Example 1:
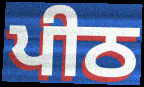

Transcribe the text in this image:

ਪੀਠ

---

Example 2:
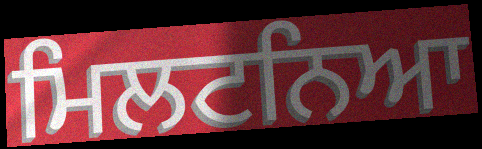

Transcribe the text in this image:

ਮਿਲਟਨਿਆ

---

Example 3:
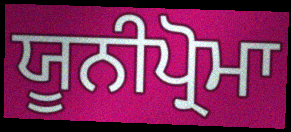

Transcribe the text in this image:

ਯੂਨੀਪ੍ਰੋਮਾ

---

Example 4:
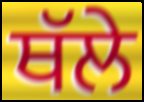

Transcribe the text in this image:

ਥੱਲੇ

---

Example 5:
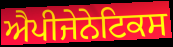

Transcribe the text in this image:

ਐਪੀਜੇਨੇਟਿਕਸ